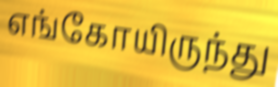
எங்கோயிருந்து